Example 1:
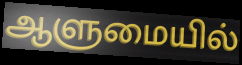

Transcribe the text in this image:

ஆளுமையில்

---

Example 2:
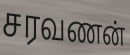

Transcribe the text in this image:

சரவணன்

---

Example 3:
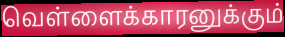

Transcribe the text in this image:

வெள்ளைக்காரனுக்கும்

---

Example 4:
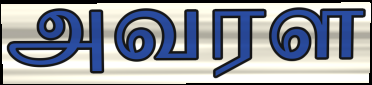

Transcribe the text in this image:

அவரள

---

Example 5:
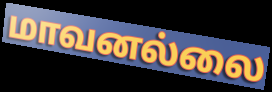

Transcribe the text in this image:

மாவனல்லை